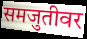
समजुतीवर